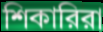
শিকারিরা